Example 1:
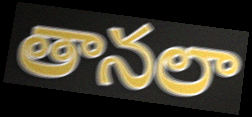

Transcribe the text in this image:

తానలా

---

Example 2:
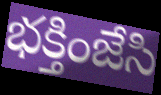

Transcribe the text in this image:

భక్తింజేసి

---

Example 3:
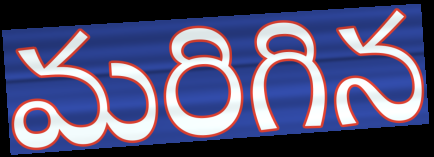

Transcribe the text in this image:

మరిగిన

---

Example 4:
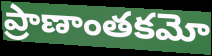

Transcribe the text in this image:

ప్రాణాంతకమో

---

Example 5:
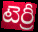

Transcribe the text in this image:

టెర్రీ